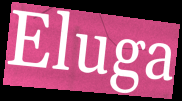
Eluga